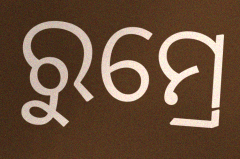
ରୁମ୍ରେ